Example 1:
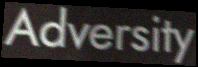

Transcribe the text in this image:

Adversity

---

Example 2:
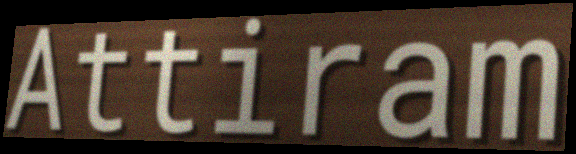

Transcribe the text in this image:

Attiram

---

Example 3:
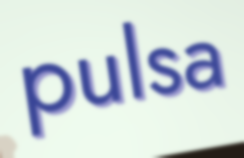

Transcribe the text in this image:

pulsa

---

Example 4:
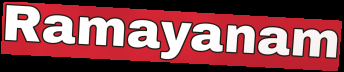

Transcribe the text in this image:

Ramayanam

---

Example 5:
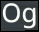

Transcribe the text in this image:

Og